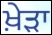
ਖ਼ੇੜਾ